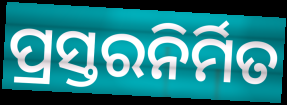
ପ୍ରସ୍ତରନିର୍ମିତ